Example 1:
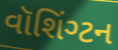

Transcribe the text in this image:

વૉશિંગ્ટન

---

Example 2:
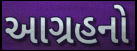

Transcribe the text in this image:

આગ્રહનો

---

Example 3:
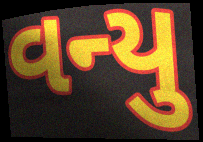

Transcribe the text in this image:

વન્યુ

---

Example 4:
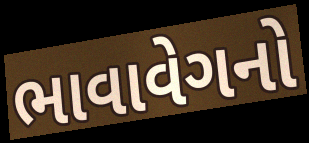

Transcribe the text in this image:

ભાવાવેગનો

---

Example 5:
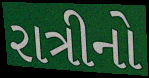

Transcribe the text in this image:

રાત્રીનો